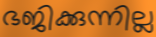
ഭജിക്കുന്നില്ല